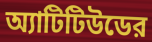
অ্যাটিটিউডের